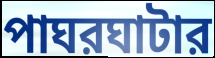
পাঘরঘাটার